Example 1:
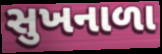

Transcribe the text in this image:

સુખનાળા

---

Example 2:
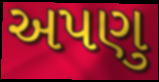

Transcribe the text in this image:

અપણુ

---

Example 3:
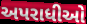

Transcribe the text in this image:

અપરાધીઓ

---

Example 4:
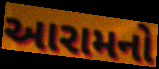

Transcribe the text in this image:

આરામનો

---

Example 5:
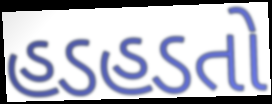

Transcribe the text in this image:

હડહડતો